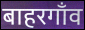
बाहरगाँव